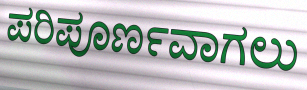
ಪರಿಪೂರ್ಣವಾಗಲು